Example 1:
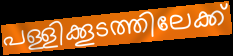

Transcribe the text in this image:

പള്ളിക്കൂടത്തിലേക്ക്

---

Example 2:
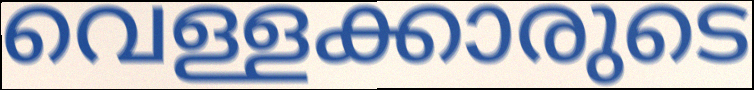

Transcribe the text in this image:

വെള്ളക്കാരുടെ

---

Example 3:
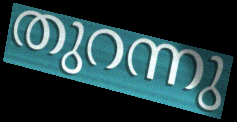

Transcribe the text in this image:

തുറന്നു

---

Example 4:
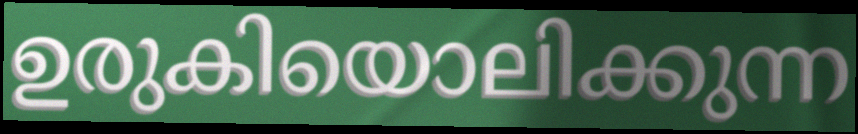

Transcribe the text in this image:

ഉരുകിയൊലിക്കുന്ന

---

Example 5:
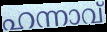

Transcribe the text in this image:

ഹന്നാവ്